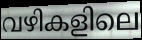
വഴികളിലെ